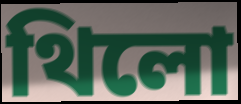
থিলো